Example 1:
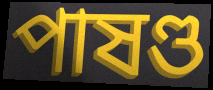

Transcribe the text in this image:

পাষণ্ড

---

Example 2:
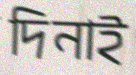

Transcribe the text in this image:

দিনাই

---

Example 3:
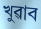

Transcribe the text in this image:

খুৱাব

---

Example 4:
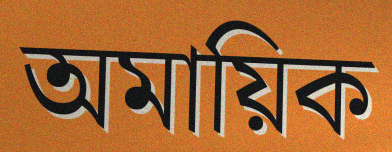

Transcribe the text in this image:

অমায়িক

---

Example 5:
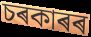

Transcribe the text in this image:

চৰকাৰৰ